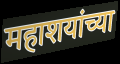
महाशयांच्या